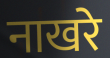
नाखरे